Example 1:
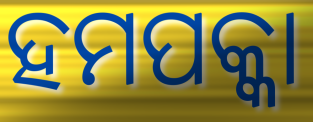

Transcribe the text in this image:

ହମପକ୍କା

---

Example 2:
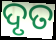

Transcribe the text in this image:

ଦୃତ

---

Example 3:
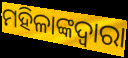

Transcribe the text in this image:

ମହିଳାଙ୍କଦ୍ୱାରା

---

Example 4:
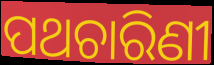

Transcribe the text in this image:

ପଥଚାରିଣୀ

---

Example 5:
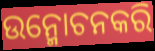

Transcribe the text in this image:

ଉନ୍ମୋଚନକରି